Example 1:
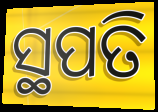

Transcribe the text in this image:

ସ୍ଥପତି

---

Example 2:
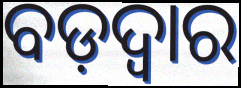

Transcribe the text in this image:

ବଡ଼ଦ୍ୱାର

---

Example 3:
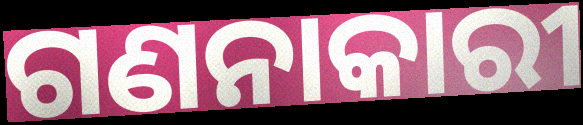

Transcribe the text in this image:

ଗଣନାକାରୀ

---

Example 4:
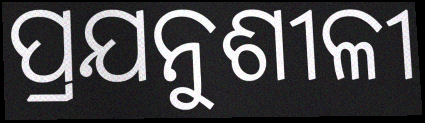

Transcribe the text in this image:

ପ୍ରଯନୁଶୀଳୀ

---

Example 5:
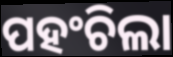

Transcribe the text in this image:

ପହଂଚିଲା